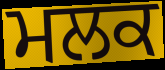
ਮਲਕ